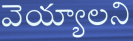
వెయ్యాలని